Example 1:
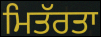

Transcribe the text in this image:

ਮਿਤੱਰਤਾ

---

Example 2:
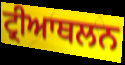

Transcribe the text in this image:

ਟ੍ਰੀਆਥਲਨ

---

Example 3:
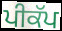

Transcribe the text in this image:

ਪੀਕੱਪ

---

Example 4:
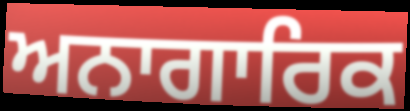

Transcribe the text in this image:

ਅਨਾਗਾਰਿਕ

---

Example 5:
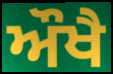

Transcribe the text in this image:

ਔਖੈ